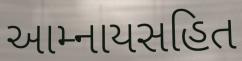
આમ્નાયસહિત